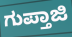
ಗುಪ್ತಾಜಿ